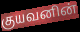
குயவனின்